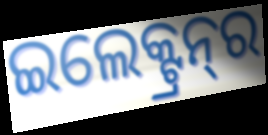
ଇଲେକ୍ଟ୍ରନ୍‌ର